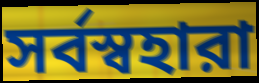
সর্বস্বহারা